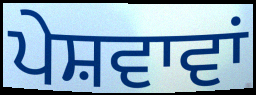
ਪੇਸ਼ਵਾਵਾਂ